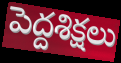
పెద్దశిక్షలు